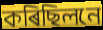
কৰিছিলনে